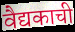
वैद्यकाची